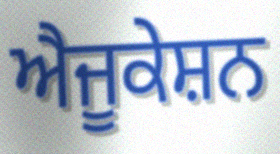
ਐਜੂਕੇਸ਼ਨ